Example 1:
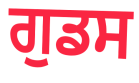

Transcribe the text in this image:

ਗੁਡਸ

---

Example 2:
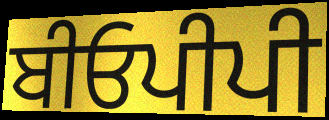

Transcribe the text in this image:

ਬੀਓਪੀਪੀ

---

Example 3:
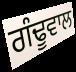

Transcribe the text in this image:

ਗੰਢੂਵਾਲ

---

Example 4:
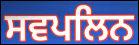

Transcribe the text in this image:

ਸਵਪਲਿਨ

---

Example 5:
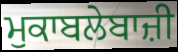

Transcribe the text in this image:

ਮੁਕਾਬਲੇਬਾਜ਼ੀ